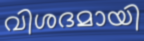
വിശദമായി